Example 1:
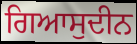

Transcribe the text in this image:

ਗਿਆਸੁਦੀਨ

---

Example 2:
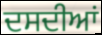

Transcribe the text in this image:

ਦਸਦੀਆਂ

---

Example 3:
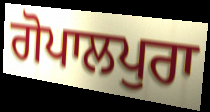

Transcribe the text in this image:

ਗੋਪਾਲਪੁਰਾ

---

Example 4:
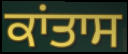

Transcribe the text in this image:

ਕਾਂਤਾਸ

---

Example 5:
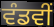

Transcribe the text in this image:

ਵੰਡਵੀਂ